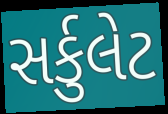
સર્કુલેટ